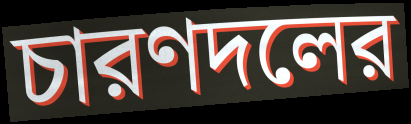
চারণদলের